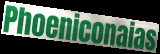
Phoeniconaias